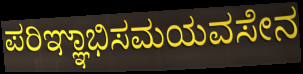
ಪರಿಞ್ಞಾಭಿಸಮಯವಸೇನ